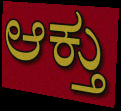
ಆಕ್ತು